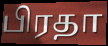
பிரதா